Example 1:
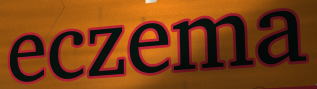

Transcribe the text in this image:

eczema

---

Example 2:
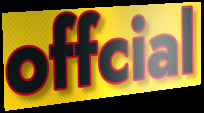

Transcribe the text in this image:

offcial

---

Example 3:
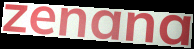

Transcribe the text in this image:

zenana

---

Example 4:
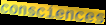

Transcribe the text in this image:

consciences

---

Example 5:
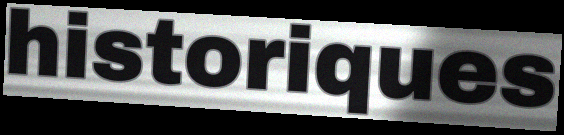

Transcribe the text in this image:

historiques